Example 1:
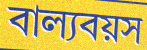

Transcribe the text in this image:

বাল্যবয়স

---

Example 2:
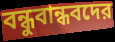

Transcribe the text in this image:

বন্ধুবান্ধবদের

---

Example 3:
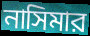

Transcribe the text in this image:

নাসিমার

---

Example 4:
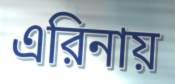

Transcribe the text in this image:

এরিনায়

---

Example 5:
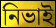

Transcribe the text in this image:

নিভাই